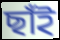
ছাঁই